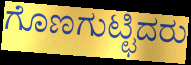
ಗೊಣಗುಟ್ಟಿದರು